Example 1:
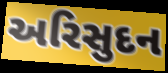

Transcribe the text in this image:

અરિસુદન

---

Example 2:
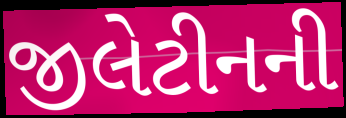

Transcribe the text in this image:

જીલેટીનની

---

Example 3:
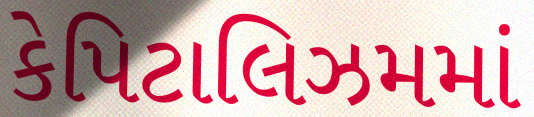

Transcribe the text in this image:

કેપિટાલિઝમમાં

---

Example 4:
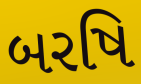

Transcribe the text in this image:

બરષિ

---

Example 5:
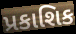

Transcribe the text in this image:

પ્રકાશિક